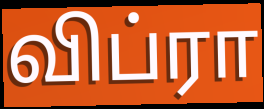
விப்ரா